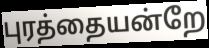
புரத்தையன்றே